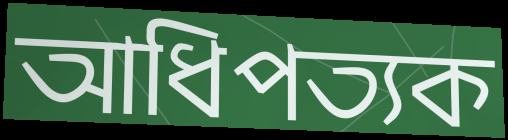
আধিপত্যক